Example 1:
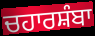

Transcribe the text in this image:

ਚਹਾਰਸ਼ੰਬਾ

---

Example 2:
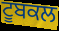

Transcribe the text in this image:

ਟੂਬਕਲ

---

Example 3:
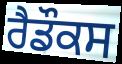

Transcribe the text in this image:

ਰੈਡੌਕਸ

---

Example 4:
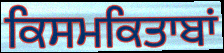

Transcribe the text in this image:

ਕਿਸਮਕਿਤਾਬਾਂ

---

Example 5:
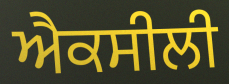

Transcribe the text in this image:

ਐਕਸੀਲੀ